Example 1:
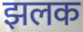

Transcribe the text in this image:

झलक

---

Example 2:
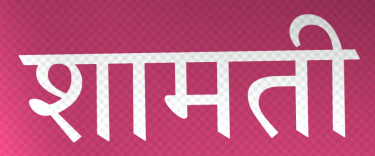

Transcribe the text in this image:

शामती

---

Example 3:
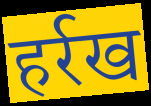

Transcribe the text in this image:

हर्रख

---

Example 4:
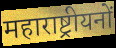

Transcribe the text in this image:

महाराष्ट्रीयनों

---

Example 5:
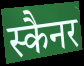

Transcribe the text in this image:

स्कैनर